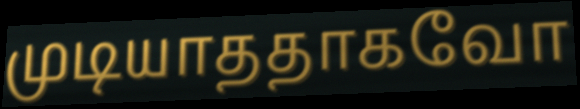
முடியாததாகவோ